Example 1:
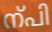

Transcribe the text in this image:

ന്പി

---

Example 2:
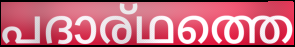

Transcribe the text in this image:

പദാര്ഥത്തെ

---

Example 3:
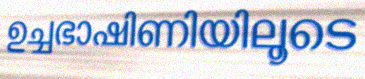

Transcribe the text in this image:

ഉച്ചഭാഷിണിയിലൂടെ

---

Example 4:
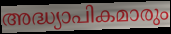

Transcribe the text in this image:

അദ്ധ്യാപികമാരും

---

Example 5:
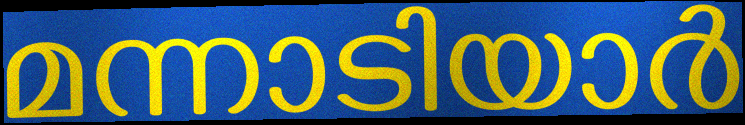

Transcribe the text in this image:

മന്നാടിയാർ